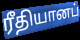
ரீதியானப்